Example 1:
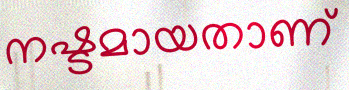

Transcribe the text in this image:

നഷ്ടമായതാണ്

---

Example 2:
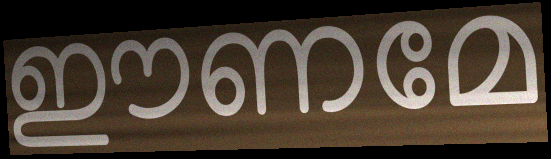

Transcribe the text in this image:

ഈണമേ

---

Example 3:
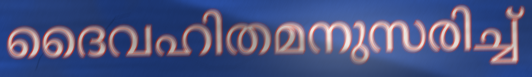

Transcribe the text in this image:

ദൈവഹിതമനുസരിച്ച്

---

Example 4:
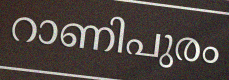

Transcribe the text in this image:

റാണിപുരം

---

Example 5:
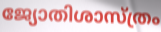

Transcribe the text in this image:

ജ്യോതിശാസ്ത്രം